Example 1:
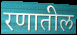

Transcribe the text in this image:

रणातील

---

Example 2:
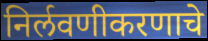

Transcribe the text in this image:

निर्लवणीकरणाचे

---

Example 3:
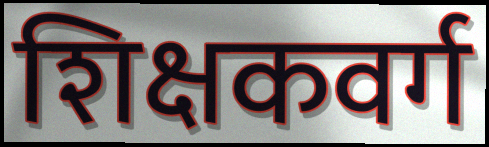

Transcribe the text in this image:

शिक्षकवर्ग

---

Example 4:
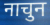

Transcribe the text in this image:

नाचुन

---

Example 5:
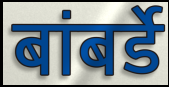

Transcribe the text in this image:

बांबर्डे